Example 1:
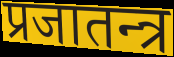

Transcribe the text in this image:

प्रजातन्त्र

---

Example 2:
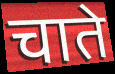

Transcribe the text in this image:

चाते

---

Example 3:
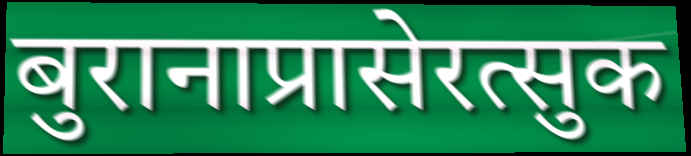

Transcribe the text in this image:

बुरानाप्रासेरत्सुक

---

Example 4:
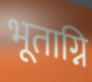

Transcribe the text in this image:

भूताग्नि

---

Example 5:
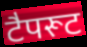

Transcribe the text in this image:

टैपरूट